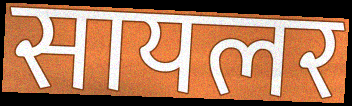
सायलर